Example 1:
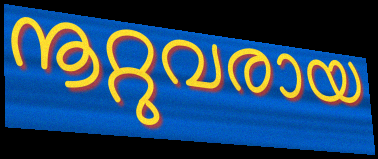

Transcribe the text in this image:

നൂറ്റുവരായ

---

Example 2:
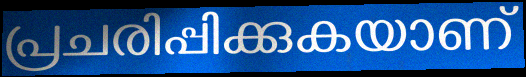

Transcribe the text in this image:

പ്രചരിപ്പിക്കുകയാണ്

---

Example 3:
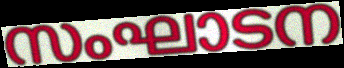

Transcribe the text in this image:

സംഘാടന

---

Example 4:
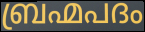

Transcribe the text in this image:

ബ്രഹ്മപദം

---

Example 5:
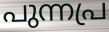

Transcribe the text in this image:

പുന്നപ്ര